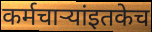
कर्मचाऱ्यांइतकेच